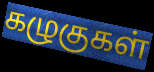
கழுகுகள்